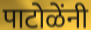
पाटोळेंनी